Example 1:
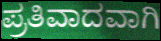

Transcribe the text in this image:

ಪ್ರತಿವಾದವಾಗಿ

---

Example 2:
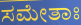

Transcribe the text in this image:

ಸಮೇತಾಃ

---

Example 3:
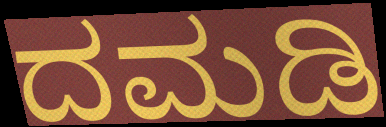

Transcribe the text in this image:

ದಮಡಿ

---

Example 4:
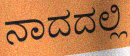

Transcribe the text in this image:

ನಾದದಲ್ಲಿ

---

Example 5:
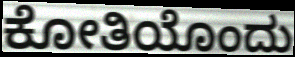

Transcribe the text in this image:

ಕೋತಿಯೊಂದು